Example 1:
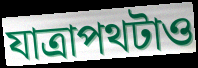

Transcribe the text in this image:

যাত্রাপথটাও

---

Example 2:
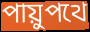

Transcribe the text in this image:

পায়ুপথে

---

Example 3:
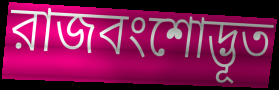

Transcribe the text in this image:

রাজবংশোদ্ভূত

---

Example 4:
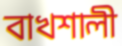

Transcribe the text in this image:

বাখশালী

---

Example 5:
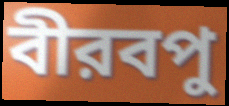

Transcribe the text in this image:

বীরবপু